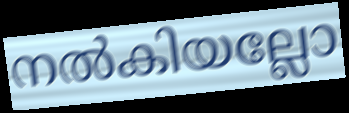
നൽകിയല്ലോ